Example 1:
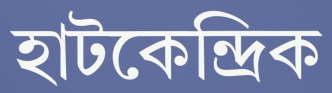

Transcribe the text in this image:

হাটকেন্দ্রিক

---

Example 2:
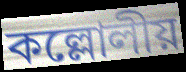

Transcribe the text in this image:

কল্লোলীয়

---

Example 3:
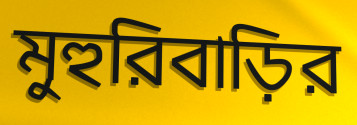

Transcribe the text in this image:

মুহুরিবাড়ির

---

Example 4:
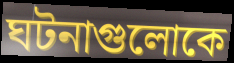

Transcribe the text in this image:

ঘটনাগুলোকে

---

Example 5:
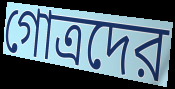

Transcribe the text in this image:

গোত্রদের